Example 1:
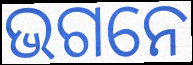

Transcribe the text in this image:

ଭଗନେ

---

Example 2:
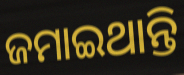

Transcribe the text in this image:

ଜମାଇଥାନ୍ତି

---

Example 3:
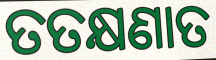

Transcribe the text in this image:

ତତକ୍ଷଣାତ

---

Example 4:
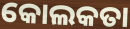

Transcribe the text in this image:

କୋଲକତା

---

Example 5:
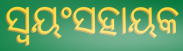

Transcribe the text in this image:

ସ୍ଵୟଂସହାୟକ